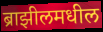
ब्राझीलमधील